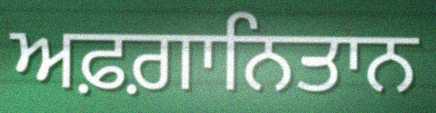
ਅਫ਼ਗ਼ਾਨਿਤਾਨ